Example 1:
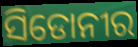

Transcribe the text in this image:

ସିଡୋନୀର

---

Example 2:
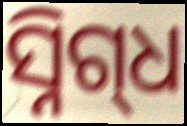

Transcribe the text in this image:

ସ୍ନିଗ୍‍ଧ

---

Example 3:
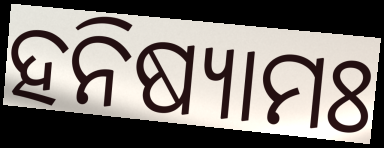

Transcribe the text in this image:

ହନିଷ୍ୟାମଃ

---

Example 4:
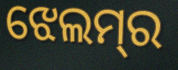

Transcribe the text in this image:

ଝେଲମ୍‌ର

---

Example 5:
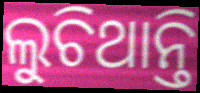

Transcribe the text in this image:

ଲୁଚିଥାନ୍ତି